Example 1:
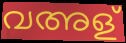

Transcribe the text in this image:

വഅള്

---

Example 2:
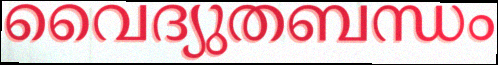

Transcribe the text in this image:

വൈദ്യുതബന്ധം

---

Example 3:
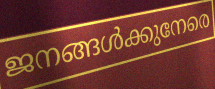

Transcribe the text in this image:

ജനങ്ങൾക്കുനേരെ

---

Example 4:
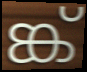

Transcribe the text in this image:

ങ്ക്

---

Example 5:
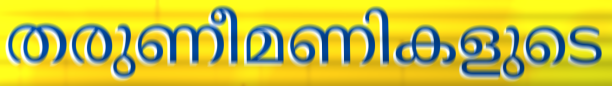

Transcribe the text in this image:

തരുണീമണികളുടെ